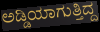
ಅಡ್ಡಿಯಾಗುತ್ತಿದ್ದ